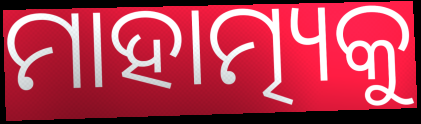
ମାହାତ୍ମ୍ୟକୁ